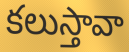
కలుస్తావా